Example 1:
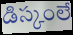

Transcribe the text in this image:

డిస్కంలే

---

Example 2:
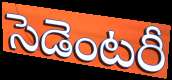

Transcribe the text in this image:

సెడెంటరీ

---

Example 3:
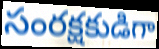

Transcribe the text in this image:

సంరక్షకుడిగా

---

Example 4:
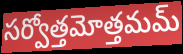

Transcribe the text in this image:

సర్వోత్తమోత్తమమ్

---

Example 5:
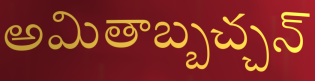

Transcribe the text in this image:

అమితాబ్బచ్చన్